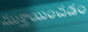
ముక్తాయించడం